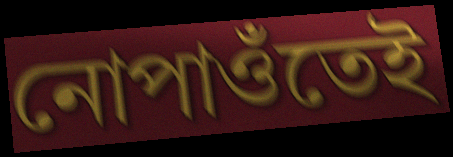
নোপাওঁতেই